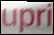
upri